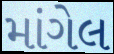
માંગેલ